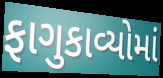
ફાગુકાવ્યોમાં